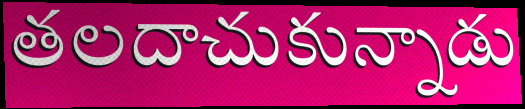
తలదాచుకున్నాడు